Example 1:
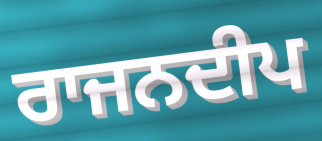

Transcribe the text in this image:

ਰਾਜਨਦੀਪ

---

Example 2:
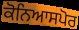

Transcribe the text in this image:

ਕੋਨਿਆਸਪੋਰ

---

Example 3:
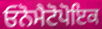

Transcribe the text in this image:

ਓਨੋਮੈਟੋਪੋਇਕ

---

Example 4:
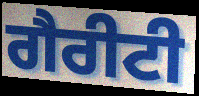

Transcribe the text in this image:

ਗੈਰੀਟੀ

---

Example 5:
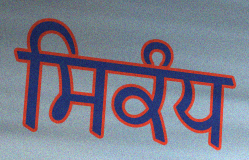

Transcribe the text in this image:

ਸਿਕੰਧ